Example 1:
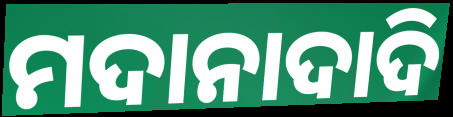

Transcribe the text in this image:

ମଦାନାଦାଦି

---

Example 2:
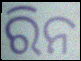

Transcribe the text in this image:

ରିନ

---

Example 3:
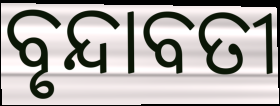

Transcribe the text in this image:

ବୃନ୍ଦାବତୀ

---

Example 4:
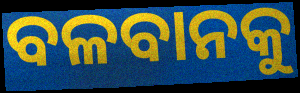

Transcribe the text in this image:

ବଳବାନକୁ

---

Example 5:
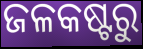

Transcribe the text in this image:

ଜଳକଷ୍ଟରୁ